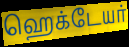
ஹெக்டேயர்